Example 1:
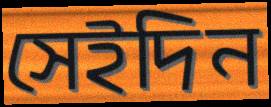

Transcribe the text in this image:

সেইদিন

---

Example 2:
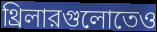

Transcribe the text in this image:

থ্রিলারগুলোতেও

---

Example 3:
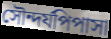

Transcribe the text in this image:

সৌন্দর্যপিপাসা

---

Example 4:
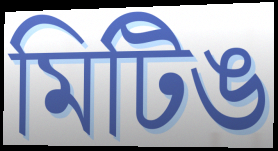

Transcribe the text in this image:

মিটিঙ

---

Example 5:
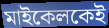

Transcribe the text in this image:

মাইকেলকেই